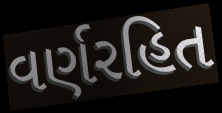
વર્ણરહિત